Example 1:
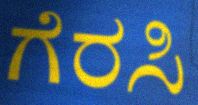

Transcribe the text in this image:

ಗೆರಸಿ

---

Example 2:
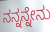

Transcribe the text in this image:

ನನ್ನನ್ನೇನು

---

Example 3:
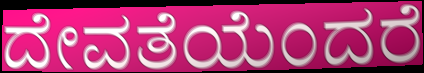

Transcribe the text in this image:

ದೇವತೆಯೆಂದರೆ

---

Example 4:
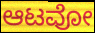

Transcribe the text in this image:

ಆಟವೋ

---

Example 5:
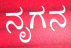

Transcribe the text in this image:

ನೃಗನ